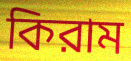
কিরাম